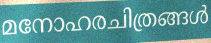
മനോഹരചിത്രങ്ങൾ